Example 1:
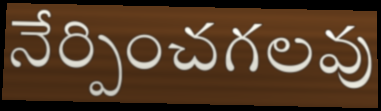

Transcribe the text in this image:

నేర్పించగలవు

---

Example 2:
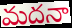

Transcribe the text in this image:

మదనా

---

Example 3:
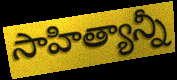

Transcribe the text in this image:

సాహిత్యాన్నీ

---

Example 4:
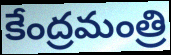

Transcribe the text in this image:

కేంద్రమంత్రి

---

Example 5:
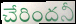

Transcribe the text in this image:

చేరిందనీ